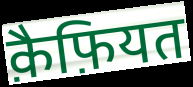
क़ैफ़ियत